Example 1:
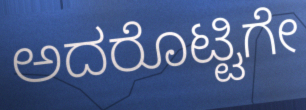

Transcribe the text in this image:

ಅದರೊಟ್ಟಿಗೇ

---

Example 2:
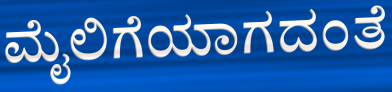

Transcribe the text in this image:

ಮೈಲಿಗೆಯಾಗದಂತೆ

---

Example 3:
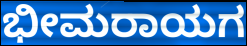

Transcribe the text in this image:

ಭೀಮರಾಯಗ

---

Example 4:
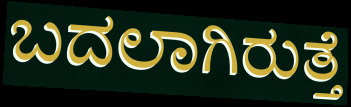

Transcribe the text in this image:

ಬದಲಾಗಿರುತ್ತೆ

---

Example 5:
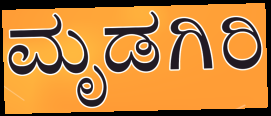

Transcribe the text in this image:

ಮೃಡಗಿರಿ